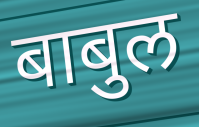
बाबुल